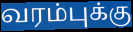
வரம்புக்கு